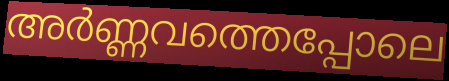
അർണ്ണവത്തെപ്പോലെ